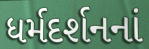
ધર્મદર્શનનાં